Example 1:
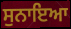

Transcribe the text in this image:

ਸੁਨਾਇਆ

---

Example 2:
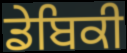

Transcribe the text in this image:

ਡੇਬਿਕੀ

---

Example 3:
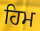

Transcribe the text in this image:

ਹਿਮ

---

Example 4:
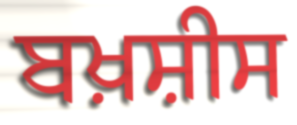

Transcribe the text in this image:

ਬਖ਼ਸ਼ੀਸ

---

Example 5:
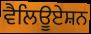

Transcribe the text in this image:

ਵੈਲਿਊਏਸ਼ਨ